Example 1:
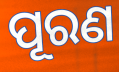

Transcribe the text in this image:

ପୂରଣ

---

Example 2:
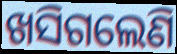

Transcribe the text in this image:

ଖସିଗଲେଣି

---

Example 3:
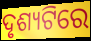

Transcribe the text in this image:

ଦୃଶ୍ୟଟିରେ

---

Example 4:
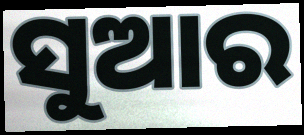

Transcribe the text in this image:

ସୁଆର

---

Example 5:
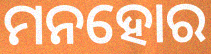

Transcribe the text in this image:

ମନହୋର